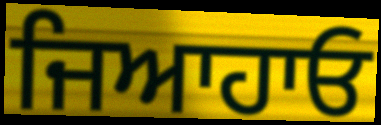
ਜਿਆਹਾਓ